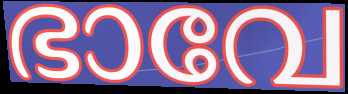
ഭാവേ